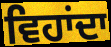
ਵਿਹਾਂਦਾ